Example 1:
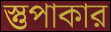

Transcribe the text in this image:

স্তুপাকার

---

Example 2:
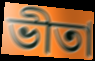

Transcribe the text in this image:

ভীতা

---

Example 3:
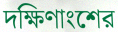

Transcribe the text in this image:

দক্ষিণাংশের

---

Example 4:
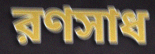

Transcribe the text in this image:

রণসাধ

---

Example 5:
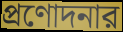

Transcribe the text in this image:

প্রণোদনার